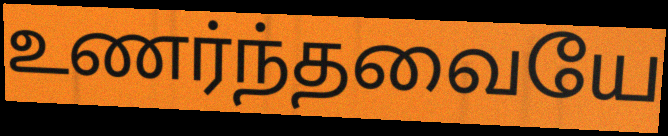
உணர்ந்தவையே